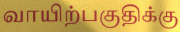
வாயிற்பகுதிக்கு